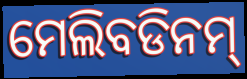
ମେଲିବଡିନମ୍